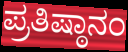
ಪ್ರತಿಷ್ಠಾನಂ